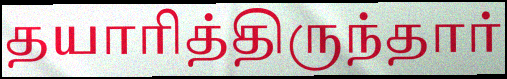
தயாரித்திருந்தார்